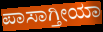
ಪಾಸಾಗ್ತೀಯಾ